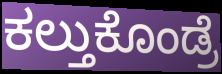
ಕಲ್ತುಕೊಂಡ್ರೆ